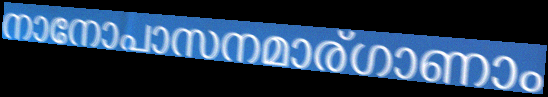
നാനോപാസനമാര്ഗാണാം